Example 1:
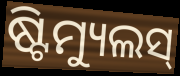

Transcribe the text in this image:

ଷ୍ଟିମ୍ୟୁଲସ୍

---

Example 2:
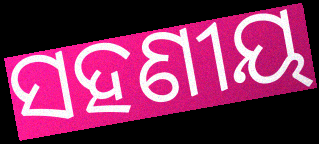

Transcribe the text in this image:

ସହଣୀୟ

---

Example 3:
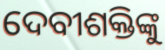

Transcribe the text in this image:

ଦେବୀଶକ୍ତିଙ୍କୁ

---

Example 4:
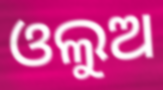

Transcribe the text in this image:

ଓଲୁଅ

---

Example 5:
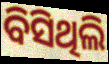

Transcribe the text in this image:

ବିସିଥିଲି